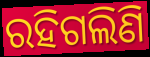
ରହିଗଲିଣି